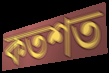
কতশত